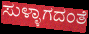
ಸುಳ್ಳಾಗದಂತೆ